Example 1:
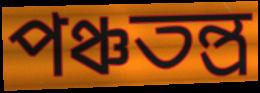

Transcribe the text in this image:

পঞ্চতন্ত্ৰ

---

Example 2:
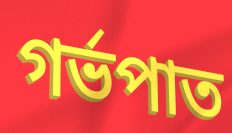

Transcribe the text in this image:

গৰ্ভপাত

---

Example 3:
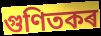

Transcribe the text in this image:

গুণিতকৰ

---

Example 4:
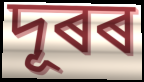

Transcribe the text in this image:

দূৰৰ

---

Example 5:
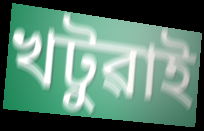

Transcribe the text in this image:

খটুৱাই